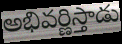
అభివర్ణిస్తాడు